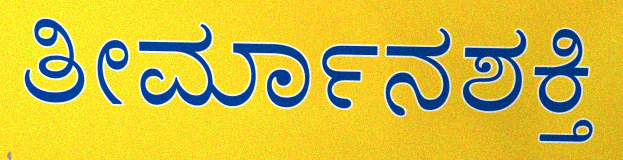
ತೀರ್ಮಾನಶಕ್ತಿ